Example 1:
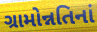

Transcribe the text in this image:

ગ્રામોન્નતિનાં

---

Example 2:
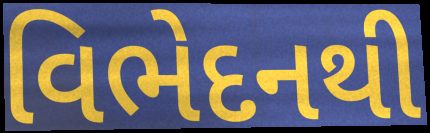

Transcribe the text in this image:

વિભેદનથી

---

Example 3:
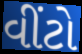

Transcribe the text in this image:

વીંટો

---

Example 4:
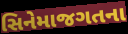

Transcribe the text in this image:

સિનેમાજગતના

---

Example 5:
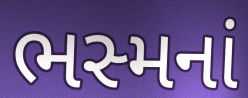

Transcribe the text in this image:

ભસ્મનાં